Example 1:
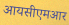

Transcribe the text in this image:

आयसीएमआर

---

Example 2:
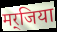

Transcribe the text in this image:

मर्जिया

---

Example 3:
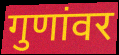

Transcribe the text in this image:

गुणांवर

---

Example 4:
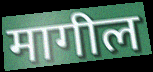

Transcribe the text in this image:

मागील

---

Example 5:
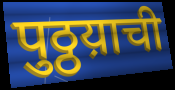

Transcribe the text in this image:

पुठ्ठय़ाची